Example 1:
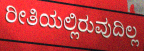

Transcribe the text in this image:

ರೀತಿಯಲ್ಲಿರುವುದಿಲ್ಲ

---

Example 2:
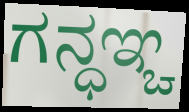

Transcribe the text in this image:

ಗನ್ಧಞ್ಚ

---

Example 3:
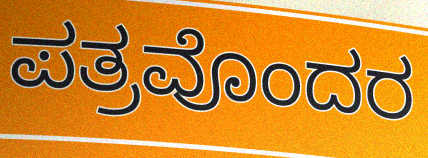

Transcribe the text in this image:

ಪತ್ರವೊಂದರ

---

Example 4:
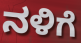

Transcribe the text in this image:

ನಳಿಗೆ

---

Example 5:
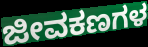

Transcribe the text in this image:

ಜೀವಕಣಗಳ